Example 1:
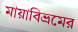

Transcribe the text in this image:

মায়াবিভ্রমের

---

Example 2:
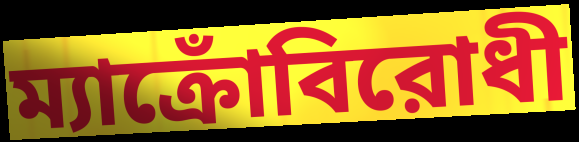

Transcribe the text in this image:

ম্যাক্রোঁবিরোধী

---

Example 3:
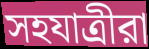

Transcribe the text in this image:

সহযাত্রীরা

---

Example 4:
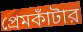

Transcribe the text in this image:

প্রেমকাঁটার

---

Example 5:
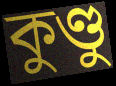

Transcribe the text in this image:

কুণ্ডু